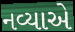
નવ્યાએ